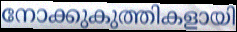
നോക്കുകുത്തികളായി